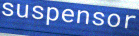
suspensor